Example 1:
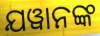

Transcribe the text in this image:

ଯୱାନଙ୍କ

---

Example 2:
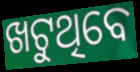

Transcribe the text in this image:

ଖଟୁଥିବେ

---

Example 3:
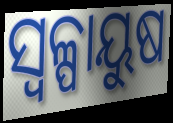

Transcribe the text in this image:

ସ୍ୱଳ୍ପାୟୁଷ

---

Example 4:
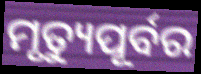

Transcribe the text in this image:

ମୃତ୍ୟୁପୂର୍ବର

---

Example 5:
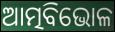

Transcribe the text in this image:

ଆତ୍ମବିଭୋଳ